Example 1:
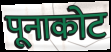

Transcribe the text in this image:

पूनाकोट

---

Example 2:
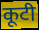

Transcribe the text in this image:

कूटी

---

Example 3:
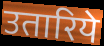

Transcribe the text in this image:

उतारिये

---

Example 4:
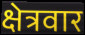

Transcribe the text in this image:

क्षेत्रवार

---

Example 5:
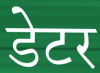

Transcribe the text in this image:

डेटर